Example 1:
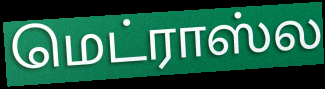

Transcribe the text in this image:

மெட்ராஸ்ல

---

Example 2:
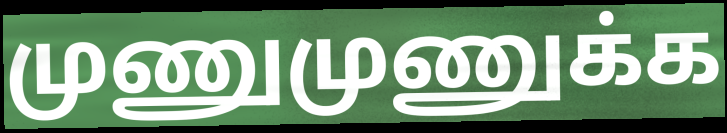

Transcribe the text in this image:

முணுமுணுக்க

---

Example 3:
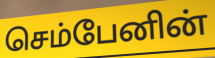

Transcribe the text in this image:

செம்பேனின்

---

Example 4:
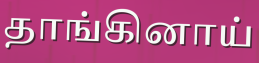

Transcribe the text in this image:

தாங்கினாய்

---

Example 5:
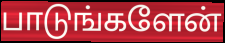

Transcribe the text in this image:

பாடுங்களேன்